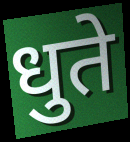
धुते